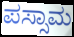
ಪಸ್ಸಾಮ